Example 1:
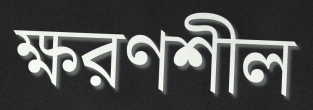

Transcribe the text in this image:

ক্ষরণশীল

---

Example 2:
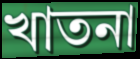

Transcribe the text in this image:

খাতনা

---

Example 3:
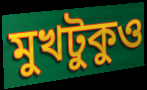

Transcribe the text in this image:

মুখটুকুও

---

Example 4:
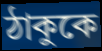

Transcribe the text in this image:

ঠাকুকে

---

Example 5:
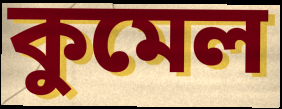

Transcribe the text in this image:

কুমেল